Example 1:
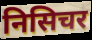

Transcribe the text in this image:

निसिचर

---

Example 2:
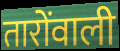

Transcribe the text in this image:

तारोंवाली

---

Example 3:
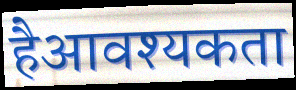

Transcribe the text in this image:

हैआवश्यकता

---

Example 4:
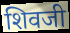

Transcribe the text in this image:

शिवजी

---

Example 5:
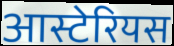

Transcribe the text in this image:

आस्टेरियस